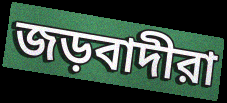
জড়বাদীরা